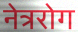
नेत्ररोग